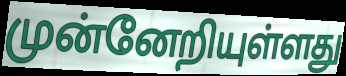
முன்னேறியுள்ளது